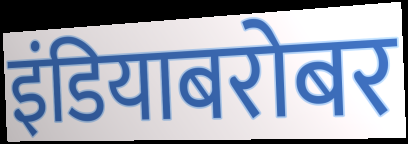
इंडियाबरोबर